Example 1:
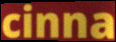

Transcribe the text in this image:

cinna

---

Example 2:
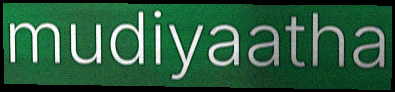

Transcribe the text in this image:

mudiyaatha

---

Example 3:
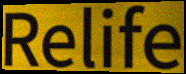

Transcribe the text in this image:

Relife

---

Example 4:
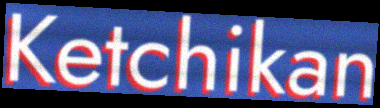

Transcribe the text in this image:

Ketchikan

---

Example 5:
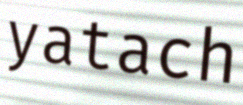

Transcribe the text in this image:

yatach